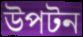
উপটন